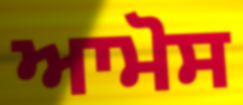
ਆਮੋਸ